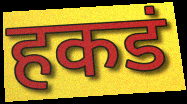
हकडं